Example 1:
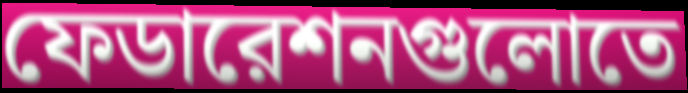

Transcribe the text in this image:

ফেডারেশনগুলোতে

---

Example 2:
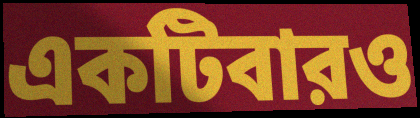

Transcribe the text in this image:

একটিবারও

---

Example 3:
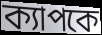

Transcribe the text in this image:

ক্যাপকে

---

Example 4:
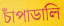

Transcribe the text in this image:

চাঁপাডালি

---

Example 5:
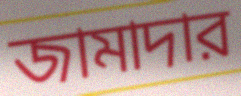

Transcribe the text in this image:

জামাদার